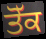
ਤੋੱਕ